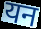
यन